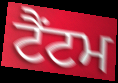
ਟੈਂਟਮ